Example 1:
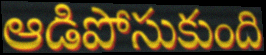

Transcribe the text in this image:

ఆడిపోసుకుంది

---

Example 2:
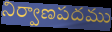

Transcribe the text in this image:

నిర్వాణపదము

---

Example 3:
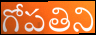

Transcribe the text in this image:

గోపతిని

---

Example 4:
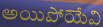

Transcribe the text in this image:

అయిపోయేవి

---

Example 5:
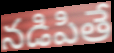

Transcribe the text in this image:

నడిపితే